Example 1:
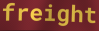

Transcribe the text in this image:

freight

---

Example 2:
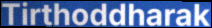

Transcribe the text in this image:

Tirthoddharak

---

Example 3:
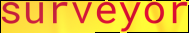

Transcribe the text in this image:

surveyor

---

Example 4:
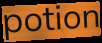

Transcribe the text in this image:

potion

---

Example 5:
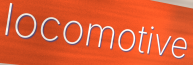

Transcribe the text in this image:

locomotive